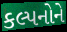
કલ્પનોને